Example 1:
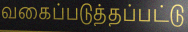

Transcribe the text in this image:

வகைப்படுத்தப்பட்டு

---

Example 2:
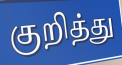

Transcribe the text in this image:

குறித்து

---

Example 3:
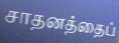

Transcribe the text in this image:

சாதனத்தைப்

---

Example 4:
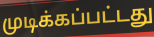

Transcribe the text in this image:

முடிக்கப்பட்டது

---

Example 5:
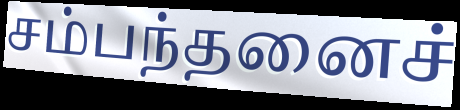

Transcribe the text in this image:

சம்பந்தனைச்